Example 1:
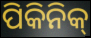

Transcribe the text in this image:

ପିକିନିକ୍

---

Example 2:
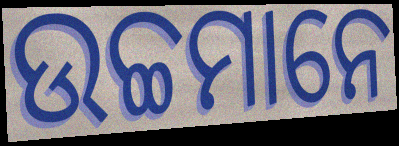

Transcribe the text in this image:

ଉଚ୍ଚମାନେ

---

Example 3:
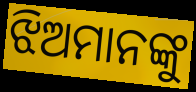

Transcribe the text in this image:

ଝିଅମାନଙ୍କୁ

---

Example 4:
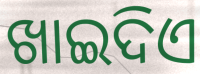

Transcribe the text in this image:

ଖାଇଦିଏ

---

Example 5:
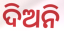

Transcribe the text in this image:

ଦିଅନି